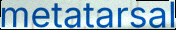
metatarsal